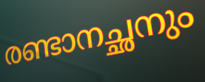
രണ്ടാനച്ഛനും